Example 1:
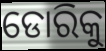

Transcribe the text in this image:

ଡୋରିକୁ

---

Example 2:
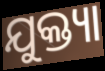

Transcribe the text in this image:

ଯୁକ୍ତ୍ୟା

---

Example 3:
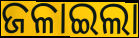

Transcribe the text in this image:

ଜଳାଇଲା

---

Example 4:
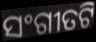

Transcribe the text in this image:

ସଂଗୀତଟି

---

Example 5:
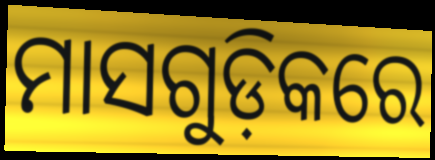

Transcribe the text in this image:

ମାସଗୁଡ଼ିକରେ